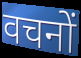
वचनों